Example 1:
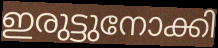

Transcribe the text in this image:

ഇരുട്ടുനോക്കി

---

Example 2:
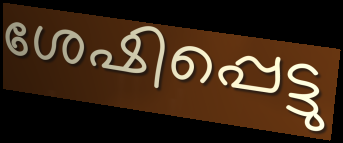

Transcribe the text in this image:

ശേഷിപ്പെട്ടു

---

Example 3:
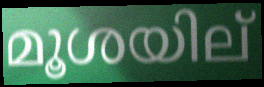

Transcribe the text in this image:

മൂശയില്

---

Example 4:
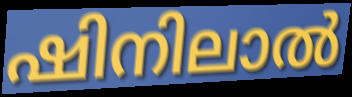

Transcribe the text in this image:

ഷിനിലാൽ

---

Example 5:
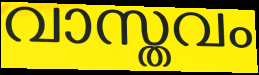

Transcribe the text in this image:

വാസ്തവം